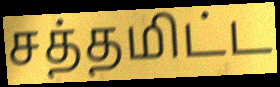
சத்தமிட்ட